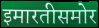
इमारतीसमोर